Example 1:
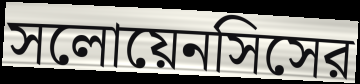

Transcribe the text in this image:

সলোয়েনসিসের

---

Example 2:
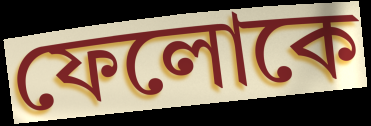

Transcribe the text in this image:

ফেলোকে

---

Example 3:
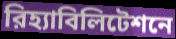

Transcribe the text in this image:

রিহ্যাবিলিটেশনে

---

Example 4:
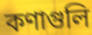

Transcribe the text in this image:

কণাগুলি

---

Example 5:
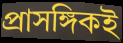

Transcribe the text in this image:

প্রাসঙ্গিকই